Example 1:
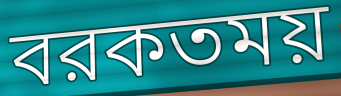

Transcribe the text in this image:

বরকতময়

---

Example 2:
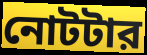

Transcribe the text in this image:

নোটটার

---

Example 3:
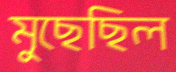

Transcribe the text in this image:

মুছেছিল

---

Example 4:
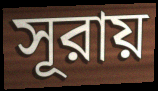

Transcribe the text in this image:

সূরায়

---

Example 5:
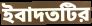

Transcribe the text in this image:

ইবাদতটির